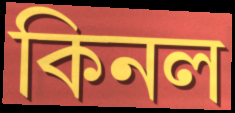
কিনল